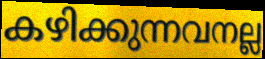
കഴിക്കുന്നവനല്ല